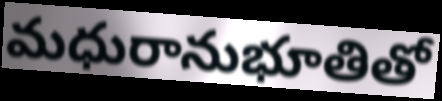
మధురానుభూతితో